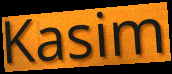
Kasim